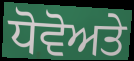
ਧੋਵੋਅਤੇ